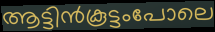
ആട്ടിൻകൂട്ടംപോലെ